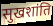
सुखशांति